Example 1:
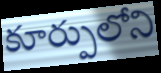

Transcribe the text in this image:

కూర్పులోని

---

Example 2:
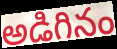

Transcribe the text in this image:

అడిగినం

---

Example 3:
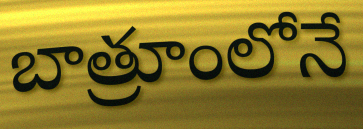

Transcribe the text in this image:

బాత్రూంలోనే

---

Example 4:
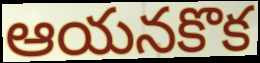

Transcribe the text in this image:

ఆయనకొక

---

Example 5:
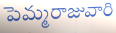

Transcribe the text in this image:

పెమ్మరాజువారి